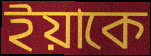
ইয়াকে